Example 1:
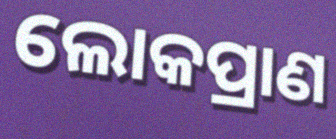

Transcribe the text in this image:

ଲୋକପ୍ରାଣ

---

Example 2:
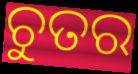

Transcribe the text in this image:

ଚୁତର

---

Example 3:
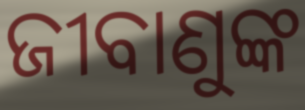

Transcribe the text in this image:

ଜୀବାଣୁଙ୍କ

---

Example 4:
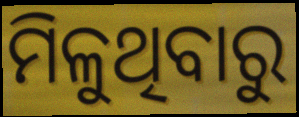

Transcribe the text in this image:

ମିଳୁଥିବାରୁ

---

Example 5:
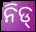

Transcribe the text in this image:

ନିଡ୍